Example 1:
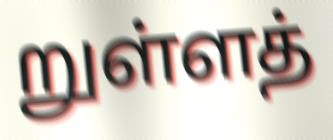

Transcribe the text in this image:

றுள்ளத்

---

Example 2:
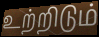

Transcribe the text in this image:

உற்றிடும்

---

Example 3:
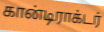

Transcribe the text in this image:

கான்டிராக்டர்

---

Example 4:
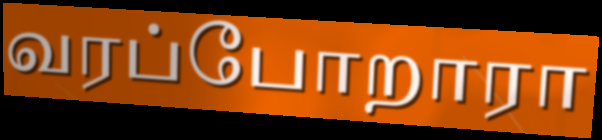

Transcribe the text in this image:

வரப்போறாரா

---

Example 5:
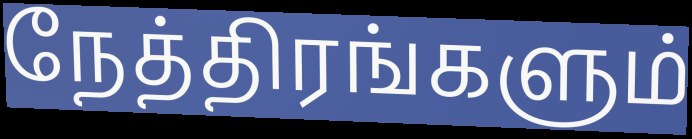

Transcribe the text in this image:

நேத்திரங்களும்